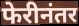
फेरीनंतर